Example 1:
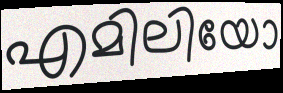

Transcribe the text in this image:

എമിലിയോ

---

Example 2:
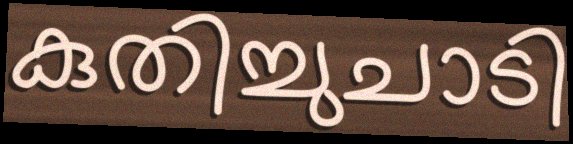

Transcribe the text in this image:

കുതിച്ചുചാടി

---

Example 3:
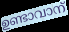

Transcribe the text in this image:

ഉണ്ടാവാന്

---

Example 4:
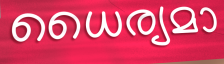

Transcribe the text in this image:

ധൈര്യമാ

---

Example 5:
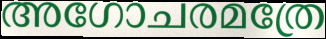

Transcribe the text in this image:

അഗോചരമത്രേ